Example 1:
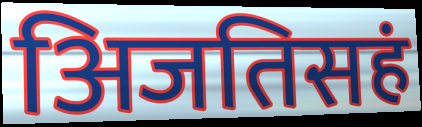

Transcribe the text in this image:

अिजतिसहं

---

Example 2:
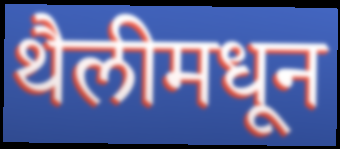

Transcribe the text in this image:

थैलीमधून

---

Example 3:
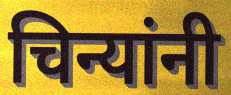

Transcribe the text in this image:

चिन्यांनी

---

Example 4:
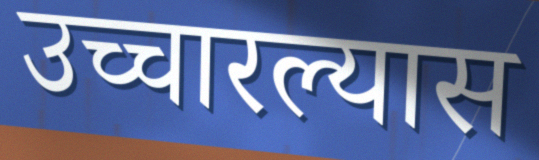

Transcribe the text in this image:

उच्चारल्यास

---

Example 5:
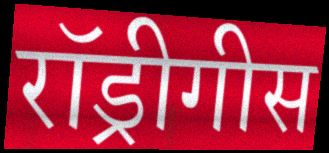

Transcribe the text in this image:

रॉड्रीगीस